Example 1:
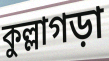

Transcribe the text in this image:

কুল্লাগড়া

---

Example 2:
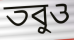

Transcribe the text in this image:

তবুও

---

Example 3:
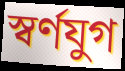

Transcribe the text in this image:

স্বর্ণযুগ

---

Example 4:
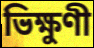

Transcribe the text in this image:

ভিক্ষুণী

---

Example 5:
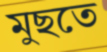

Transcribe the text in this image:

মুছতে